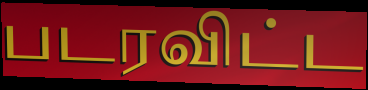
படரவிட்ட